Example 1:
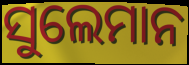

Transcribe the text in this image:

ସୁଲେମାନ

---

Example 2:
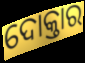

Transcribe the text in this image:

ଦୋକ୍ତାର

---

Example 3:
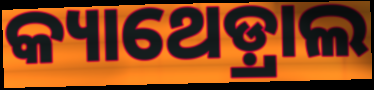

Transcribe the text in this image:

କ୍ୟାଥେଡ଼୍ରାଲ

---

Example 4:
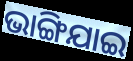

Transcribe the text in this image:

ଭାଙ୍ଗିଯାଇ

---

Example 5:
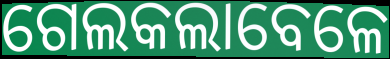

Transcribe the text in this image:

ଗେଲକଲାବେଳେ